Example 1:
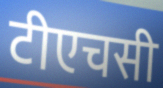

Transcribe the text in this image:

टीएचसी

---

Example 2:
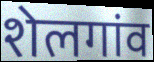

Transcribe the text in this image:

शेलगांव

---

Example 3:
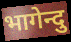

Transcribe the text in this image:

भागेन्दु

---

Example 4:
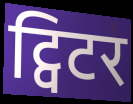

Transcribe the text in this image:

ट्विटर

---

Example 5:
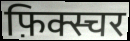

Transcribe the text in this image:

फ़िक्स्चर